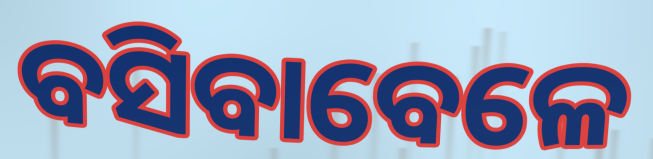
ବସିବାବେଳେ